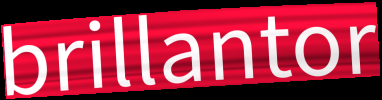
brillantor